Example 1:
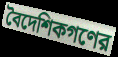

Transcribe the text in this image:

বৈদেশিকগণের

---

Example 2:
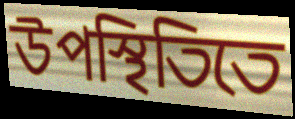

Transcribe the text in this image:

উপস্থিতিতে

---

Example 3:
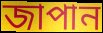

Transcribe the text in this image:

জাপান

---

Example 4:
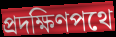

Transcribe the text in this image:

প্রদক্ষিণপথে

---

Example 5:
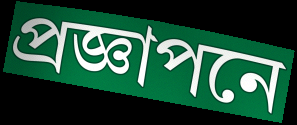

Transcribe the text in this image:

প্রজ্ঞাপনে